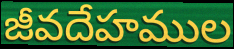
జీవదేహముల